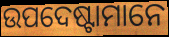
ଉପଦେଷ୍ଟାମାନେ